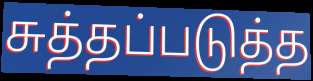
சுத்தப்படுத்த